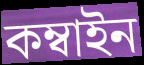
কম্বাইন